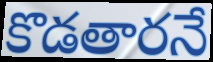
కొడతారనే